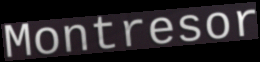
Montresor